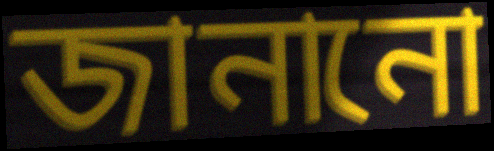
জানানো